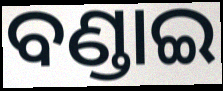
ବଣ୍ଡାଇ